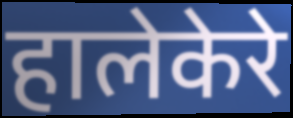
हालेकेरे